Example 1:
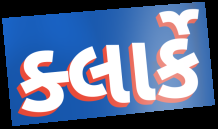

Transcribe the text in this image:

ક્લાર્કે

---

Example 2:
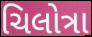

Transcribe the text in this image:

ચિલોત્રા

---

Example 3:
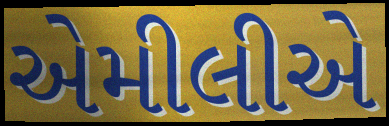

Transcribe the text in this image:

એમીલીએ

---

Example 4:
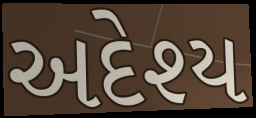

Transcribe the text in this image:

અદેશ્ય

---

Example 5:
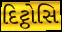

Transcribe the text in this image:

દિટ્ઠોસિ